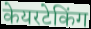
केयरटेकिंग